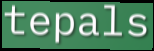
tepals